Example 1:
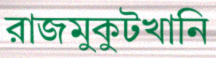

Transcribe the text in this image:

রাজমুকুটখানি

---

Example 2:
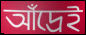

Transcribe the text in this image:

আঁদ্রেই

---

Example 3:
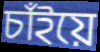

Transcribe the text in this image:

চাঁইয়ে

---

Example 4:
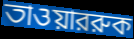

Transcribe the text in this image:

তাওয়াররুক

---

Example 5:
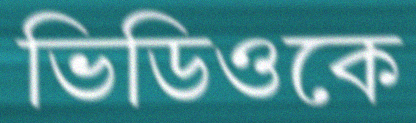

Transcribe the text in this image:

ভিডিওকে